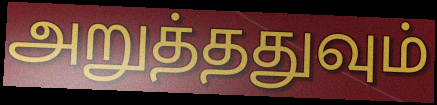
அறுத்ததுவும்